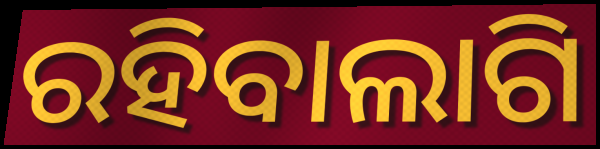
ରହିବାଲାଗି